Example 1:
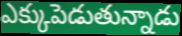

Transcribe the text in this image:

ఎక్కుపెడుతున్నాడు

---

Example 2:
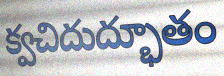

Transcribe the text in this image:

క్వచిదుద్భూతం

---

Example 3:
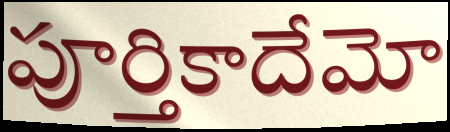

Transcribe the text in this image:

పూర్తికాదేమో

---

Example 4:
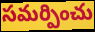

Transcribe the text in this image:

సమర్పించు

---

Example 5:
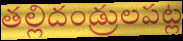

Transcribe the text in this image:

తల్లిదండ్రులపట్ల